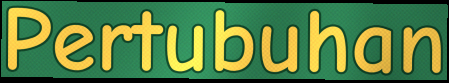
Pertubuhan